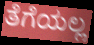
ತೆಗೆಯಲ್ಲ